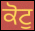
ਕੋਟੁ